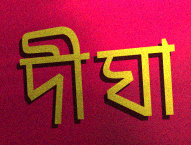
দীঘা